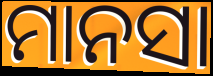
ମାନସା